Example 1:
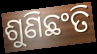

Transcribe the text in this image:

ଶୁଣିଛଂତି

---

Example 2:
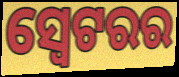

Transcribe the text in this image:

ସ୍ୱେଟରର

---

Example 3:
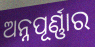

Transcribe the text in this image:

ଅନ୍ନପୂର୍ଣ୍ଣାର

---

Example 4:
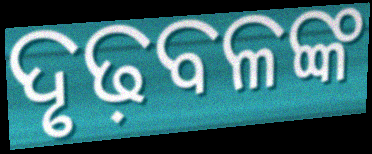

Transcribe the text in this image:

ଦୃଢ଼ବଳଙ୍କ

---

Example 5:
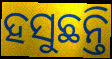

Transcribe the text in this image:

ହସୁଛନ୍ତି